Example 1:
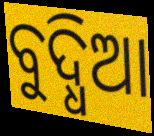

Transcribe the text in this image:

ବୁଦ୍ଧିଆ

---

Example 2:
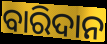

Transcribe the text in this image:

ବାରିଦାନ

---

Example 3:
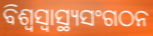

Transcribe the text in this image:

ବିଶ୍ଵସ୍ଵାସ୍ଥ୍ୟସଂଗଠନ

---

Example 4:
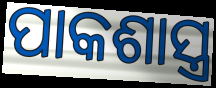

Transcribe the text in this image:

ପାକଶାସ୍ତ୍ର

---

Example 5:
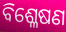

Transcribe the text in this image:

ବିଶ୍ଳେଷଣ